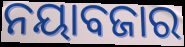
ନୟାବଜାର